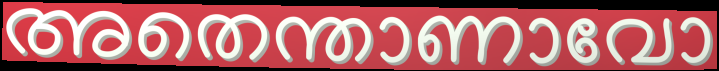
അതെന്താണാവോ